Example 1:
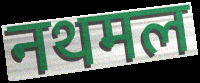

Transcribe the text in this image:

नथमल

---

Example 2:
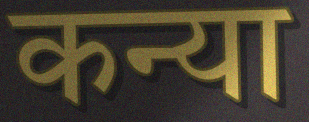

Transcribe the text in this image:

कन्या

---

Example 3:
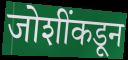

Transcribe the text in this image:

जोशींकडून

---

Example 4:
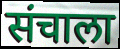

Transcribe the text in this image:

संचाला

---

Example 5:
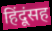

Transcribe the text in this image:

हिंदूंसह